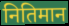
नितिमान